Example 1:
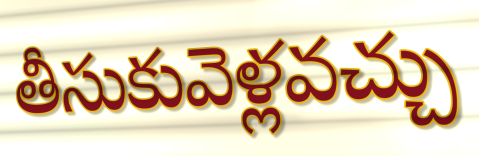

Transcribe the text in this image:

తీసుకువెళ్లవచ్చు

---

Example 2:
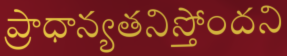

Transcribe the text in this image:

ప్రాధాన్యతనిస్తోందని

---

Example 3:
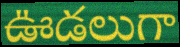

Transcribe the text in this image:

ఊడలుగా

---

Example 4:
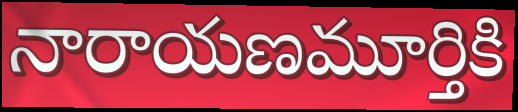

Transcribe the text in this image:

నారాయణమూర్తికి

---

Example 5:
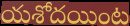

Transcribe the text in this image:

యశోదయింట